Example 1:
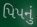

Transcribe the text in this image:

પિપનું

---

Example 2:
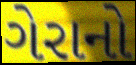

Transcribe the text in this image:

ગેરાનો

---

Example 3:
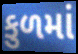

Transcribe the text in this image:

કુળમાં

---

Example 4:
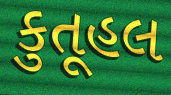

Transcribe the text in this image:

કુતૂહલ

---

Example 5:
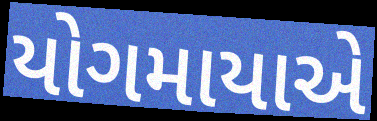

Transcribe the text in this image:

યોગમાયાએ